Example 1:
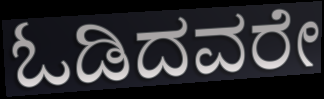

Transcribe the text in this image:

ಓಡಿದವರೇ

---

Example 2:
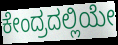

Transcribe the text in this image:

ಕೇಂದ್ರದಲ್ಲಿಯೇ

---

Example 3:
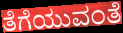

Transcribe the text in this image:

ತೆಗೆಯುವಂತೆ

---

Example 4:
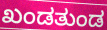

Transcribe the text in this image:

ಖಂಡತುಂಡ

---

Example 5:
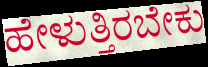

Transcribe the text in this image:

ಹೇಳುತ್ತಿರಬೇಕು